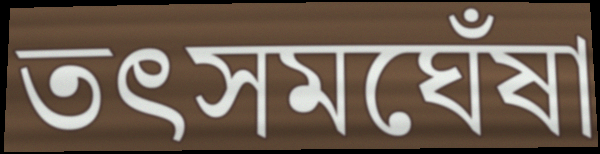
তৎসমঘেঁষা